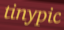
tinypic